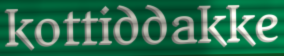
kottiddakke